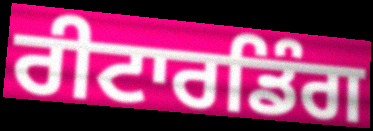
ਰੀਟਾਰਡਿੰਗ